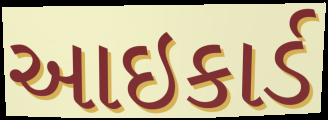
આઇકાર્ડ